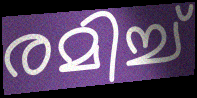
രമിച്ച്